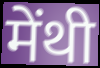
मेंथी